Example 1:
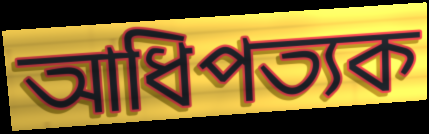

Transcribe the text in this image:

আধিপত্যক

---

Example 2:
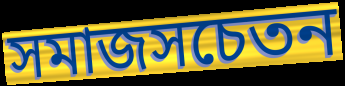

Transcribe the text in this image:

সমাজসচেতন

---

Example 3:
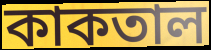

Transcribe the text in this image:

কাকতাল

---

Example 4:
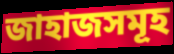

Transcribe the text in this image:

জাহাজসমূহ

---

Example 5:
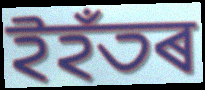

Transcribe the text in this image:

ইহঁতৰ